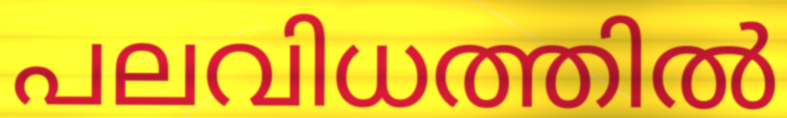
പലവിധത്തിൽ